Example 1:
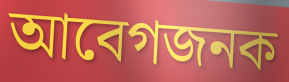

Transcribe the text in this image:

আবেগজনক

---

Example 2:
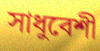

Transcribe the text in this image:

সাধুবেশী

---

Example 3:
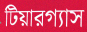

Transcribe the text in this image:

টিয়ারগ্যাস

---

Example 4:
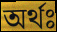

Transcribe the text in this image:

অর্থঃ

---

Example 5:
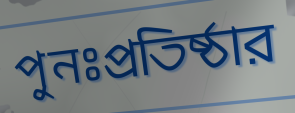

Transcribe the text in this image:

পুনঃপ্রতিষ্ঠার